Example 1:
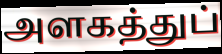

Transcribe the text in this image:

அளகத்துப்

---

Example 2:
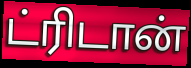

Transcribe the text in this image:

ட்ரிடான்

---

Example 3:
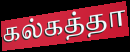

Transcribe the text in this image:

கல்கத்தா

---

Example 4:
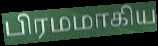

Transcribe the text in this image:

பிரமமாகிய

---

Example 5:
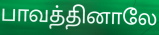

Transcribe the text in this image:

பாவத்தினாலே